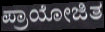
ಪ್ರಾಯೋಜಿತ